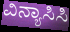
ವಿನ್ಯಾಸಿಸಿ